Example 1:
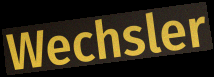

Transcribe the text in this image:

Wechsler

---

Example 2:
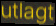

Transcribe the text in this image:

utlagt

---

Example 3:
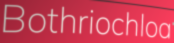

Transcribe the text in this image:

Bothriochloa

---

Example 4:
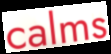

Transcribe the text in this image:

calms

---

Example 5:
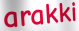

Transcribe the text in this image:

arakki